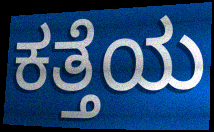
ಕತ್ತೆಯ